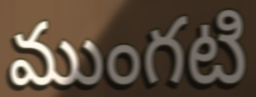
ముంగటి